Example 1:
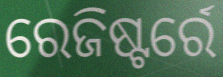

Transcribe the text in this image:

ରେଜିଷ୍ଟର୍ରେ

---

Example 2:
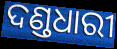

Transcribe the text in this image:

ଦଣ୍ଡଧାରୀ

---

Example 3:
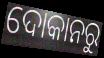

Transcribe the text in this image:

ଦୋକାନରୁ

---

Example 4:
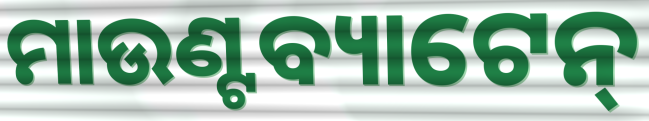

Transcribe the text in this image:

ମାଉଣ୍ଟବ୍ୟାଟେନ୍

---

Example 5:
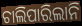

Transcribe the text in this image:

ଚାଲିପାରିଲାନି